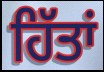
ਹਿੱਤਾਂ